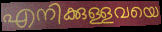
എനിക്കുള്ളവയെ